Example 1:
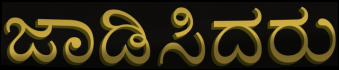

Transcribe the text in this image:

ಜಾಡಿಸಿದರು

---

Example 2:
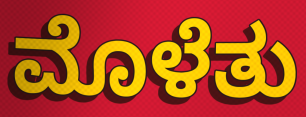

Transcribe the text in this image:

ಮೊಳೆತು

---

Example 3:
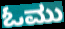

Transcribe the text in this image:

ಓಮು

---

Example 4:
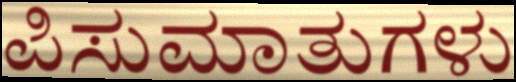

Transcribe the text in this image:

ಪಿಸುಮಾತುಗಳು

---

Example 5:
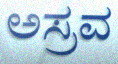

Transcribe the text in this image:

ಅಸ್ರವ